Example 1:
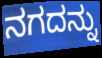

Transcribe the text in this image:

ನಗದನ್ನು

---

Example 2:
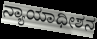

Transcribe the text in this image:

ನ್ಯಾಯಾಧೀಶನ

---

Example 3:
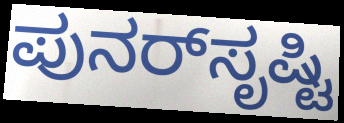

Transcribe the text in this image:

ಪುನರ್‌ಸೃಷ್ಟಿ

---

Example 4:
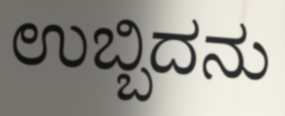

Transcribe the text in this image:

ಉಬ್ಬಿದನು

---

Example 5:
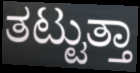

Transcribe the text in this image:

ತಟ್ಟುತ್ತಾ